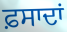
ਫ਼ਸਾਦਾਂ